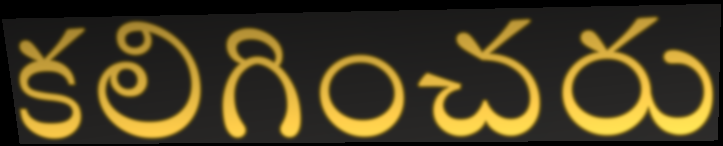
కలిగించరు